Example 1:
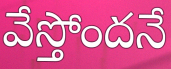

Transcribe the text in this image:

వేస్తోందనే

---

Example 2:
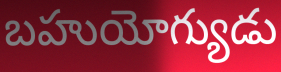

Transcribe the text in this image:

బహుయోగ్యుడు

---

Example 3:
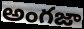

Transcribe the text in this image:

అంగజా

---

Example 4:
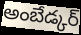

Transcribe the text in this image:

అంబేడ్కర్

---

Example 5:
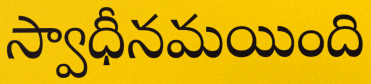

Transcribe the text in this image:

స్వాధీనమయింది